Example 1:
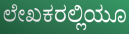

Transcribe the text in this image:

ಲೇಖಕರಲ್ಲಿಯೂ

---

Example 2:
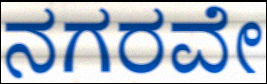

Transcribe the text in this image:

ನಗರವೇ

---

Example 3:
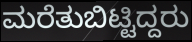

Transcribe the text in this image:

ಮರೆತುಬಿಟ್ಟಿದ್ದರು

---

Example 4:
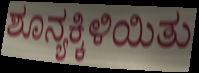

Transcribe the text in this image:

ಶೂನ್ಯಕ್ಕಿಳಿಯಿತು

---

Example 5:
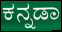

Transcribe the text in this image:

ಕನ್ನಡಾ